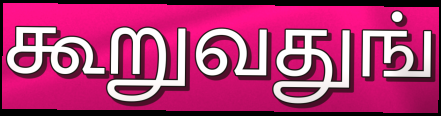
கூறுவதுங்